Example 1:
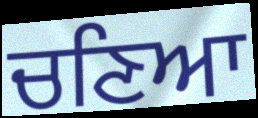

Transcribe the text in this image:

ਚਣਿਆ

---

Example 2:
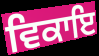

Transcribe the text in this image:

ਵਿਕਾਇ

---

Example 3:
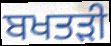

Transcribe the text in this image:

ਬਖਤੜੀ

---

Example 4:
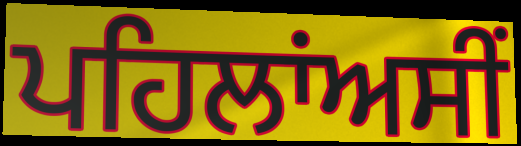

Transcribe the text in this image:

ਪਹਿਲਾਂਅਸੀਂ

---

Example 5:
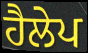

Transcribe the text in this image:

ਹੈਲੇਪ